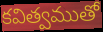
కవిత్వముతో